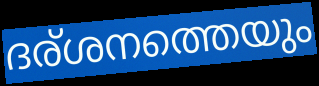
ദര്ശനത്തെയും